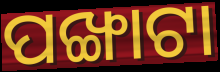
ପଙ୍ଖାଟା